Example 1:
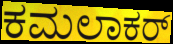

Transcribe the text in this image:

ಕಮಲಾಕರ್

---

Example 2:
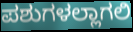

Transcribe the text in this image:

ಪಶುಗಳಲ್ಲಾಗಲಿ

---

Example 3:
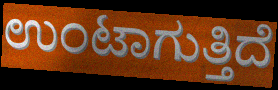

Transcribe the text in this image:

ಉಂಟಾಗುತ್ತಿದೆ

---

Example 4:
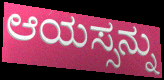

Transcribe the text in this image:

ಆಯಸ್ಸನ್ನು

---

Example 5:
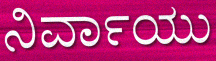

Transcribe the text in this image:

ನಿರ್ವಾಯು